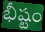
భీష్టం